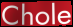
Chole